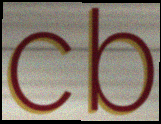
cb